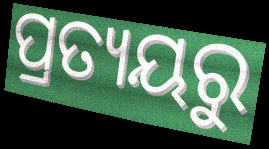
ପ୍ରତ୍ୟୟରୁ